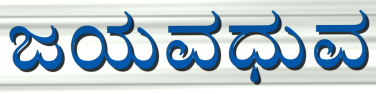
ಜಯವಧುವ